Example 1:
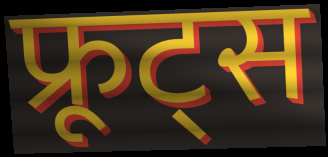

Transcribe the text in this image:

फ्रूट्स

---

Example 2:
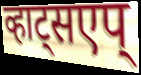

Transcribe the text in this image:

व्हाट्सएप्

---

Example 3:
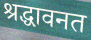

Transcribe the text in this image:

श्रद्धावनत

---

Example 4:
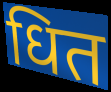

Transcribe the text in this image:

धित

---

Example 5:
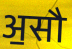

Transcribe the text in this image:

अ॒सौ